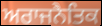
ਅਰਾਜਨੈਤਿਕ